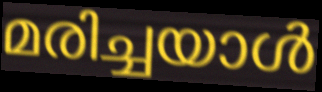
മരിച്ചയാൾ